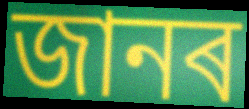
জানৰ